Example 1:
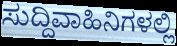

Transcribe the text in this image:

ಸುದ್ದಿವಾಹಿನಿಗಳಲ್ಲಿ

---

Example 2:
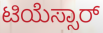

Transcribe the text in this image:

ಟಿಯೆಸ್ಸಾರ್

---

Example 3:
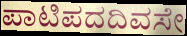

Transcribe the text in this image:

ಪಾಟಿಪದದಿವಸೇ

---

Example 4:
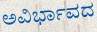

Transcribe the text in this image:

ಅವಿರ್ಭಾವದ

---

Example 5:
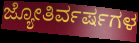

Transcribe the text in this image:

ಜ್ಯೋತಿರ್ವರ್ಷಗಳ